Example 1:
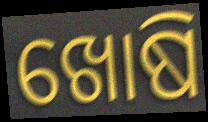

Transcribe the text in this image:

ଖୋଷି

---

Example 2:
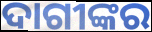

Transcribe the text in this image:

ଦାଗୀଙ୍କର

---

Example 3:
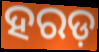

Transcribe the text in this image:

ହରଡ଼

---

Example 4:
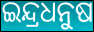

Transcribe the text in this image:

ଇନ୍ଦ୍ରଧନୁଷ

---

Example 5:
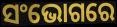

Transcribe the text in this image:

ସଂଭୋଗରେ